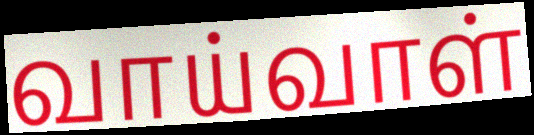
வாய்வாள்